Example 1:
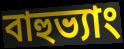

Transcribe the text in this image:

বাহুভ্যাং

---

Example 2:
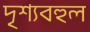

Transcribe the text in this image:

দৃশ্যবহুল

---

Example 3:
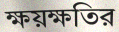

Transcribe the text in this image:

ক্ষয়ক্ষতির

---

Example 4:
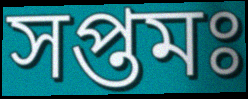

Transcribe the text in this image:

সপ্তমঃ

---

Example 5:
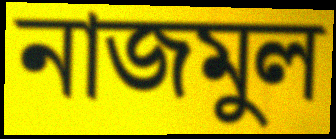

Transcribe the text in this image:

নাজমুল